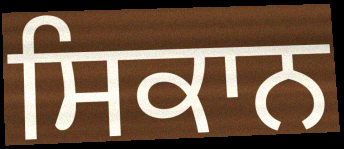
ਸਿਕਾਨ